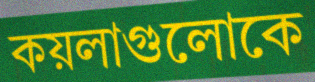
কয়লাগুলোকে